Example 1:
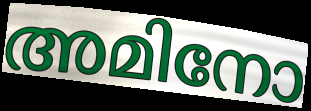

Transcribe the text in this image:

അമിനോ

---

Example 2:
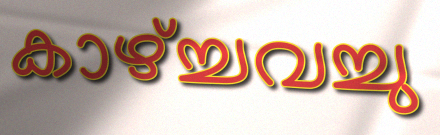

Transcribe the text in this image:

കാഴ്ച്ചവച്ചു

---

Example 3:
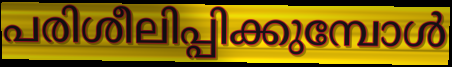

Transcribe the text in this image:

പരിശീലിപ്പിക്കുമ്പോൾ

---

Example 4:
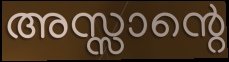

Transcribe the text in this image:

അസ്സാന്റെ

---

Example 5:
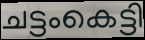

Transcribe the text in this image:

ചട്ടംകെട്ടി